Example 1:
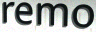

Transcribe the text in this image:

remo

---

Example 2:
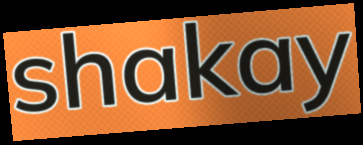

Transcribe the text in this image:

shakay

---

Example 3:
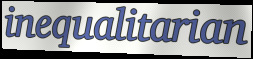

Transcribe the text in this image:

inequalitarian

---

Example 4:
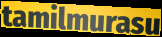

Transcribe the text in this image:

tamilmurasu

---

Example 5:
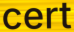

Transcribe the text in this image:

cert